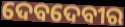
ଦେବଦେବୀର